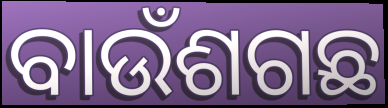
ବାଉଁଶଗଛ